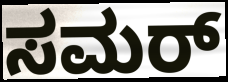
ಸಮರ್